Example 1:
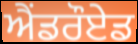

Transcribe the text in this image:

ਐਂਡਰੌਏਡ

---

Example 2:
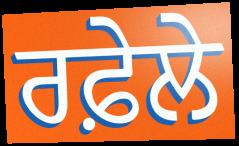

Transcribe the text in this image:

ਰਫ਼ੇਲੇ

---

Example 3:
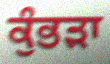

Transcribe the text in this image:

ਕੁੰਭੜਾ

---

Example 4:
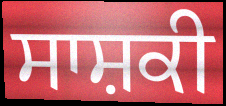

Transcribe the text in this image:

ਸਾਸ਼ਕੀ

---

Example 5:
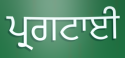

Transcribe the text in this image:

ਪ੍ਰ੍ਰਗਟਾਈ